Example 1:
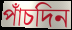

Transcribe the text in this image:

পাঁচদিন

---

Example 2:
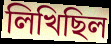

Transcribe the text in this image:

লিখিছিল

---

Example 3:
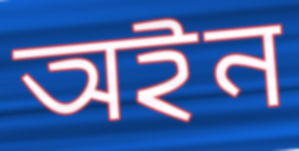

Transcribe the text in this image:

অইন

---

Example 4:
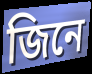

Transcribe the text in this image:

জিনে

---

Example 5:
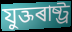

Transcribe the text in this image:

যুক্তৰাষ্ট্ৰ